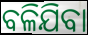
ବଳିଯିବା